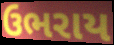
ઉભરાય